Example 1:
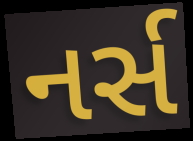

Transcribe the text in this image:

નર્સ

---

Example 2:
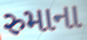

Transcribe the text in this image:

રુમાના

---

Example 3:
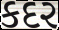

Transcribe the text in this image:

કદર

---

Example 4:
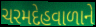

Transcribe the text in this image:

ચરમદેહવાળાને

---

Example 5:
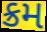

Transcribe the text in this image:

ક્રમ